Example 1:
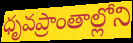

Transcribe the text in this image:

ధృవప్రాంతాల్లోని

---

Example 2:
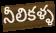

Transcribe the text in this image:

నీలికళ్ళ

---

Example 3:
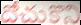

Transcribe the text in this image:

దోచుకొని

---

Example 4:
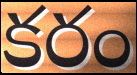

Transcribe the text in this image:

కరం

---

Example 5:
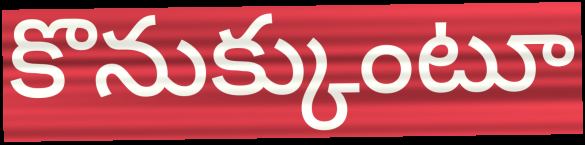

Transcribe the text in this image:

కొనుక్కుంటూ